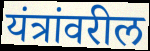
यंत्रांवरील